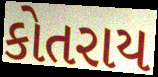
કોતરાય